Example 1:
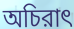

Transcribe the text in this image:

অচিরাৎ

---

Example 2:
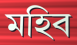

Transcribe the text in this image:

মহিব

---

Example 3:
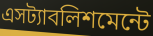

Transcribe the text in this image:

এসট্যাবলিশমেন্টে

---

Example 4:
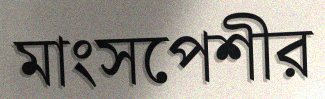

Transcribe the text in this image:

মাংসপেশীর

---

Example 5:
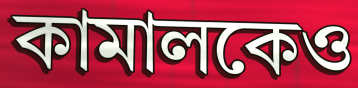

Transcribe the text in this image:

কামালকেও